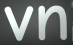
vn